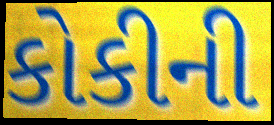
કોકીની